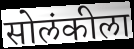
सोलंकीला